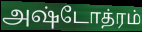
அஷ்டோத்ரம்